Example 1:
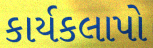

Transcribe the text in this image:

કાર્યકલાપો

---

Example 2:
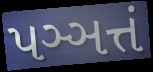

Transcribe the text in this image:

પઞ્ઞત્તં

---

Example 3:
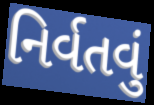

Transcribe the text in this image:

નિર્વતવું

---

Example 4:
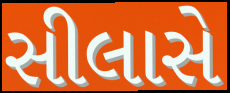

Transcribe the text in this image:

સીલાસે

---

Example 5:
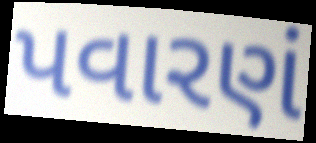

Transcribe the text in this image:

પવારણં